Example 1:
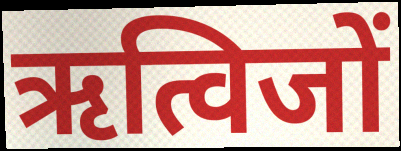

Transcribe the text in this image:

ऋत्विजों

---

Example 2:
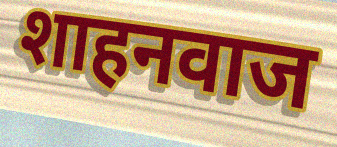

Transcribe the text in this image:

शाहनवाज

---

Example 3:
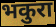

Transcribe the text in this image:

भकुरा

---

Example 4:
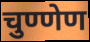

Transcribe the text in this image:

चुण्णेण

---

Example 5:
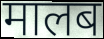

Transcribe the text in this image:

मालब